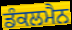
ਡੰਕਲਮੈਨ